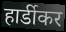
हार्डीकर